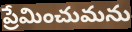
ప్రేమించుమను